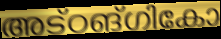
അട്ഠങ്ഗികോ